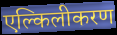
एल्किलीकरण